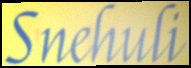
Snehuli